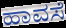
ಹಾವಸೆ